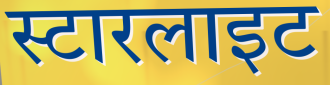
स्टारलाइट